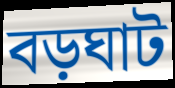
বড়ঘাট